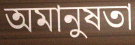
অমানুষতা